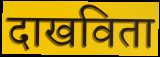
दाखविता